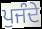
ਪੁਜੰਦੇ